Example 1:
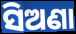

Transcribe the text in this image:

ସିଅଣା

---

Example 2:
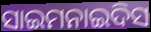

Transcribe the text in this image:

ସାଇମନାଇଦିସ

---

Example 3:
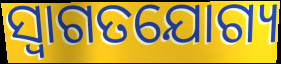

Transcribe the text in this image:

ସ୍ବାଗତଯୋଗ୍ୟ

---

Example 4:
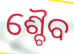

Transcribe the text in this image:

ଶ୍ଚୈବ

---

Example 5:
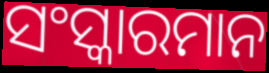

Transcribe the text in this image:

ସଂସ୍କାରମାନ